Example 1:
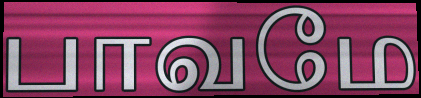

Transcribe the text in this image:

பாவமே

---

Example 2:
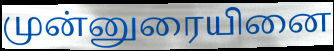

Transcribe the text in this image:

முன்னுரையினை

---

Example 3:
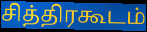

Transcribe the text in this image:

சித்திரகூடம்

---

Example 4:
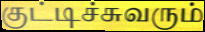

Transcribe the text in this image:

குட்டிச்சுவரும்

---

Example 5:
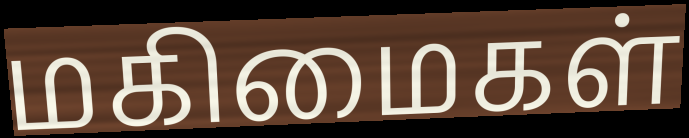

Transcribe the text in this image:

மகிமைகள்